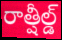
రాత్షీల్డ్